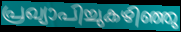
പ്രഖ്യാപിച്ചുകഴിഞ്ഞു